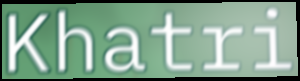
Khatri